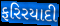
ફરિરયાદી